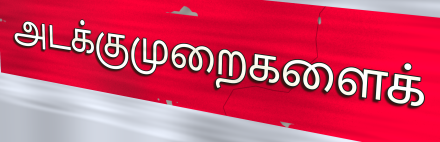
அடக்குமுறைகளைக்